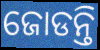
ଜୋଡନ୍ତି